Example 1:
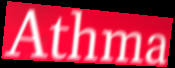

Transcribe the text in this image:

Athma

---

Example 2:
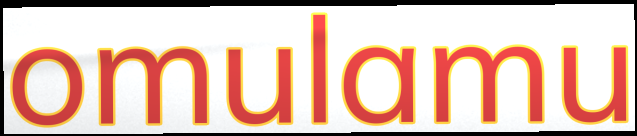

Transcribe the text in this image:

omulamu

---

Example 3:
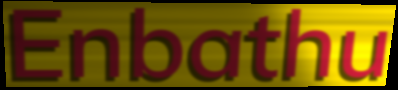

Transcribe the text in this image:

Enbathu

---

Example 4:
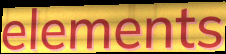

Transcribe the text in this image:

elements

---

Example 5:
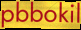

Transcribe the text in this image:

pbbokil